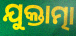
ଯୁକ୍ତାତ୍ମା